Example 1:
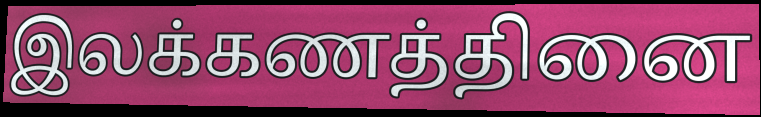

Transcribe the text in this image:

இலக்கணத்தினை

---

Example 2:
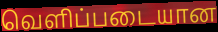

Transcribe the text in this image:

வெளிப்படையான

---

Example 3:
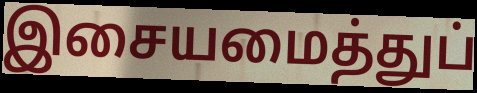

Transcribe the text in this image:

இசையமைத்துப்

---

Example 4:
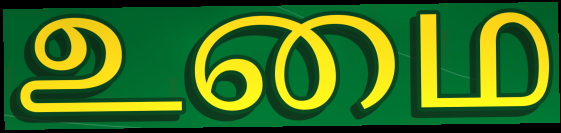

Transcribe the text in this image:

உமை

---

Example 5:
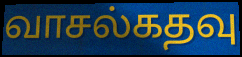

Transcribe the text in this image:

வாசல்கதவு